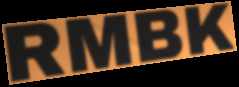
RMBK